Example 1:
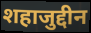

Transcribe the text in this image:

शहाजुद्दीन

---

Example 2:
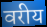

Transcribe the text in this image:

वरीय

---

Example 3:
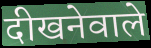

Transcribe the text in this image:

दीखनेवाले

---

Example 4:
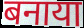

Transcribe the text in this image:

बनाया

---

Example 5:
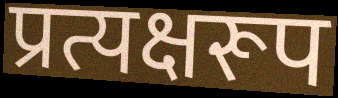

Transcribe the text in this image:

प्रत्यक्षरूप